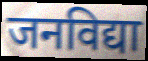
जनविद्या